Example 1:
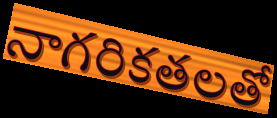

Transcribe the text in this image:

నాగరికతలతో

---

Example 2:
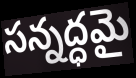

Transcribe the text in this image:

సన్నద్ధమై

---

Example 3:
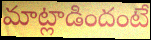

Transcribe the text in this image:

మాట్లాడిందంటే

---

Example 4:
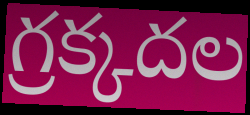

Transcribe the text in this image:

గ్రక్కదల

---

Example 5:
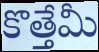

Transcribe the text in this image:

కొత్తేమీ